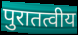
पुरातत्वीय